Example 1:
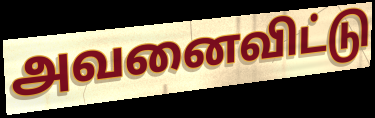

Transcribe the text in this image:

அவனைவிட்டு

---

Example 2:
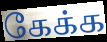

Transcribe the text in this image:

கேக்க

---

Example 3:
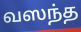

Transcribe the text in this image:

வஸந்த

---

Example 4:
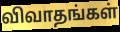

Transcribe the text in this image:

விவாதங்கள்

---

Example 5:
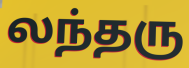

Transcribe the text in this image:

லந்தரு